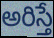
అరిస్తే